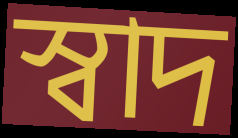
স্বাদ